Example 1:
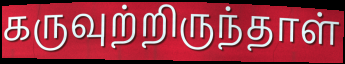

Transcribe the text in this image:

கருவுற்றிருந்தாள்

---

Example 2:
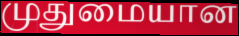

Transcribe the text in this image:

முதுமையான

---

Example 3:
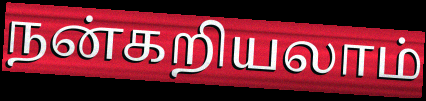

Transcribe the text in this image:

நன்கறியலாம்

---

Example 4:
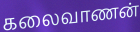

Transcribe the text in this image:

கலைவாணன்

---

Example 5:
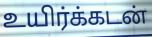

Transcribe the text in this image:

உயிர்க்கடன்